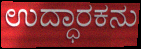
ಉದ್ಧಾರಕನು